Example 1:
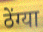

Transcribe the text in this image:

ठेंग्या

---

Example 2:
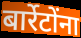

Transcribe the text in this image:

बार्रेटोंना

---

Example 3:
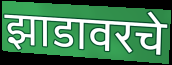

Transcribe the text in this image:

झाडावरचे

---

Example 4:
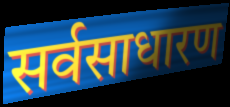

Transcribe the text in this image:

सर्वसाधारण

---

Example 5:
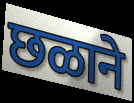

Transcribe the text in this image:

छळाने